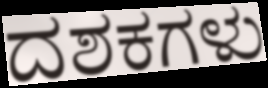
ದಶಕಗಳು